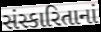
સંસ્કારિતાનાં